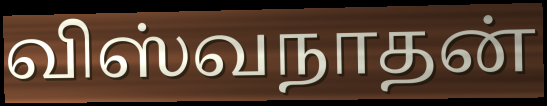
விஸ்வநாதன்